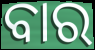
ବାର